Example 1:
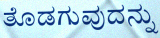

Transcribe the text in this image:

ತೊಡಗುವುದನ್ನು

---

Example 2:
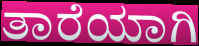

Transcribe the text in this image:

ತಾರೆಯಾಗಿ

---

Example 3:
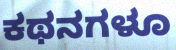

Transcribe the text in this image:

ಕಥನಗಳೂ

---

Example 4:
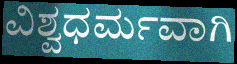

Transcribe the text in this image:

ವಿಶ್ವಧರ್ಮವಾಗಿ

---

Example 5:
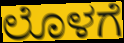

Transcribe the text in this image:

ಲೊಳಗೆ